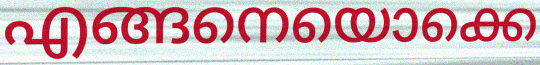
എങ്ങനെയൊക്കെ